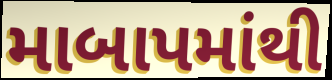
માબાપમાંથી